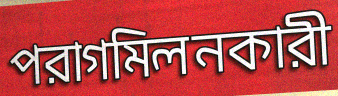
পরাগমিলনকারী